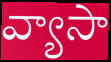
వ్యాసా